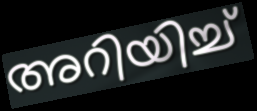
അറിയിച്ച്